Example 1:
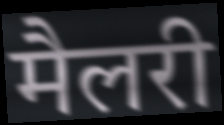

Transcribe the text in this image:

मैलरी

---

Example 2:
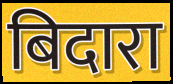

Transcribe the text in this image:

बिदारा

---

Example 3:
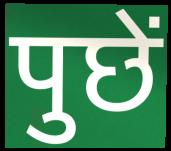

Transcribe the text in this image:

पुछें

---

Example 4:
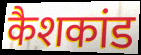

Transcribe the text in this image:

कैशकांड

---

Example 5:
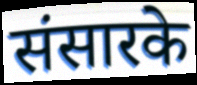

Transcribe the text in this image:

संसारके